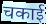
चकाई